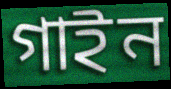
গাইন